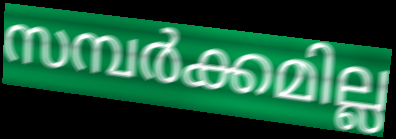
സമ്പർക്കമില്ല